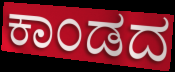
ಕಾಂಡದ